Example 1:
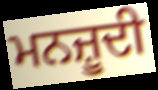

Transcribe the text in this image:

ਮਨਜ਼ੂਦੀ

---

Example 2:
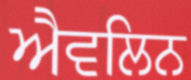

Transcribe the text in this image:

ਐਵਲਿਨ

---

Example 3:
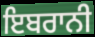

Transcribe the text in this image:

ਇਬਰਾਨੀ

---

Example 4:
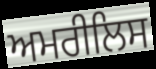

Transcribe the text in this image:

ਅਮਰੀਲਿਸ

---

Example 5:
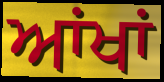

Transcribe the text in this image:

ਆਂਖਾਂ